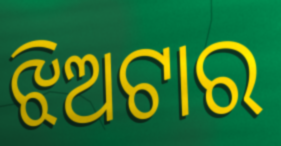
ଝିଅଟାର